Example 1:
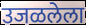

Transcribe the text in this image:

उजळलेला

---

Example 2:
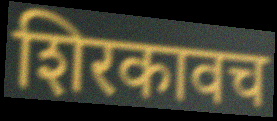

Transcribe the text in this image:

शिरकावच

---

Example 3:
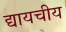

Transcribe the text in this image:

द्यायचीय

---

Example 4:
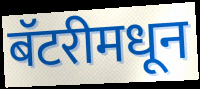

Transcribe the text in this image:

बॅटरीमधून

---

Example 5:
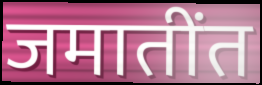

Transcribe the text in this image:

जमातींत